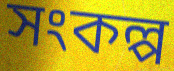
সংকল্প